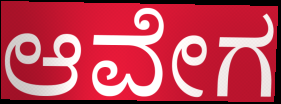
ಆವೇಗ